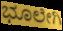
ಭೂಲೇಗಿ